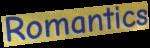
Romantics